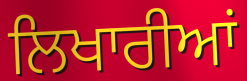
ਲਿਖਾਰੀਆਂ